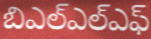
బిఎల్ఎల్ఎఫ్